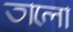
তালো